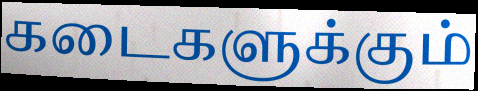
கடைகளுக்கும்